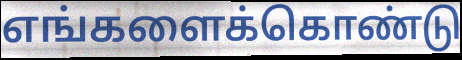
எங்களைக்கொண்டு